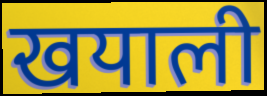
खयाली